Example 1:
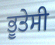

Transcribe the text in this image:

ਭੂਤੇਸੀ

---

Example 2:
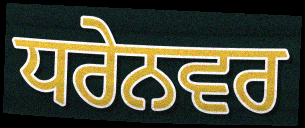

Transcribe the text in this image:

ਧਰੇਨਵਰ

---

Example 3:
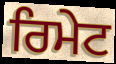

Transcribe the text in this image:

ਰਿਮੇਟ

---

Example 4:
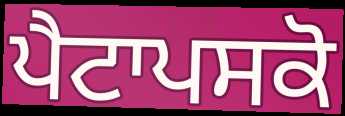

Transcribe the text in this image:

ਪੈਟਾਪਸਕੋ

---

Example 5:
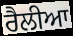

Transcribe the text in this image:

ਰੈਲੀਆ